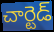
చార్టెడ్